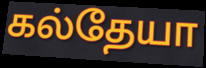
கல்தேயா